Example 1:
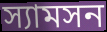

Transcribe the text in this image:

স্যামসন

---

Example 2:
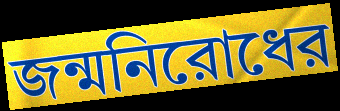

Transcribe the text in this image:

জন্মনিরোধের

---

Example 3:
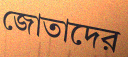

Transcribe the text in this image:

জোতাদের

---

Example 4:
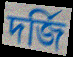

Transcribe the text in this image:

দর্জি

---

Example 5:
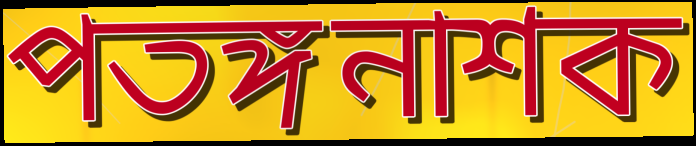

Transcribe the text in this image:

পতঙ্গনাশক